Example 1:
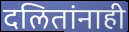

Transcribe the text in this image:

दलितांनाही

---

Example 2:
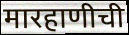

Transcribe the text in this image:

मारहाणीची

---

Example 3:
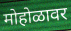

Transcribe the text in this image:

मोहोळावर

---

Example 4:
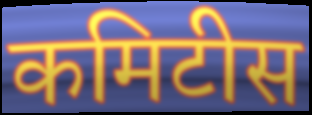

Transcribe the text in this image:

कमिटीस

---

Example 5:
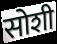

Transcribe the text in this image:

सोशी